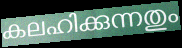
കലഹിക്കുന്നതും